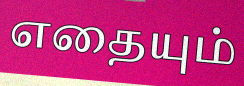
எதையும்